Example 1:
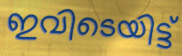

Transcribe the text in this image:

ഇവിടെയിട്ട്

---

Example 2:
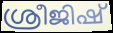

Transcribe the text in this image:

ശ്രീജിഷ്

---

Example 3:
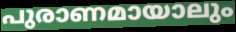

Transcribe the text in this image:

പുരാണമായാലും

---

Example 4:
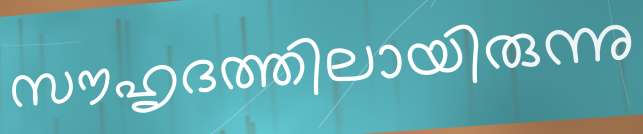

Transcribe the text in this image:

സൗഹൃദത്തിലായിരുന്നു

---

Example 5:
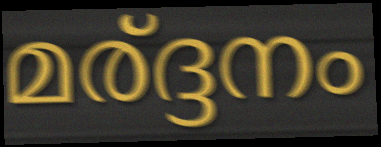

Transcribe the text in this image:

മര്ദ്ദനം